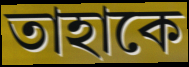
তাহাকে